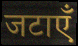
जटाएँ